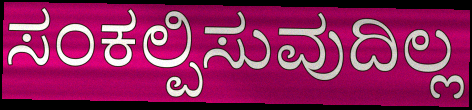
ಸಂಕಲ್ಪಿಸುವುದಿಲ್ಲ